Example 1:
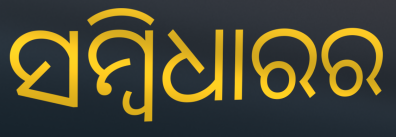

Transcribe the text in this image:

ସମ୍ବିଧାରର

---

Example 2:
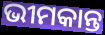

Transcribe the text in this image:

ଭୀମକାନ୍ତ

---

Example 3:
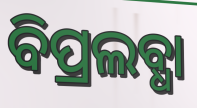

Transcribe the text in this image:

ବିପ୍ରଲବ୍ଧା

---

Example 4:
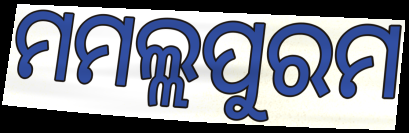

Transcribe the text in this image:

ମମଲ୍ଲପୁରମ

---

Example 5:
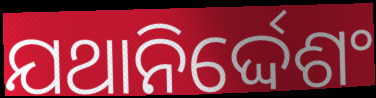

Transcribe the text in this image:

ଯଥାନିର୍ଦ୍ଦେଶଂ